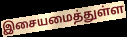
இசையமைத்துள்ள